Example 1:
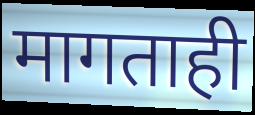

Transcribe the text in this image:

मागताही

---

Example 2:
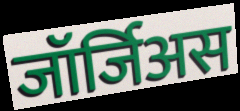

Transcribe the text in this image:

जॉर्जिअस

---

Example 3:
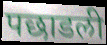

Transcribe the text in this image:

पछाडली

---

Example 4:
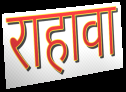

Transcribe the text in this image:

राहावा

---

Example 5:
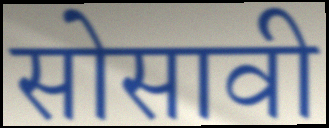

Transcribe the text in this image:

सोसावी